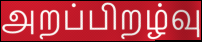
அறப்பிறழ்வு